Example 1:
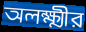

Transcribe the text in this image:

অলক্ষ্মীর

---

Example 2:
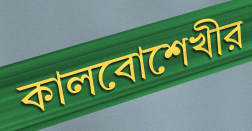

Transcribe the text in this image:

কালবোশেখীর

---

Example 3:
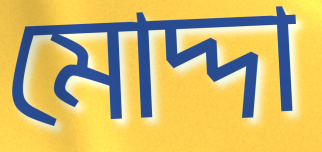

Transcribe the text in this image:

মোদ্দা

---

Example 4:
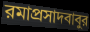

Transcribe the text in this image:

রমাপ্রসাদবাবুর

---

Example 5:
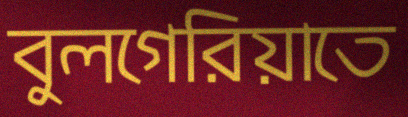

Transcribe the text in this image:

বুলগেরিয়াতে